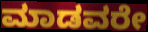
ಮಾಡವರೇ